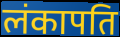
लंकापति